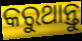
କରୁଥାନ୍ତୁ